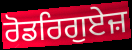
ਰੋਡਰਿਗੁਏਜ਼